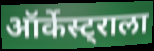
ऑर्केस्ट्राला